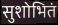
सुशोभितं